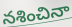
నశించినా